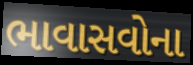
ભાવાસવોના